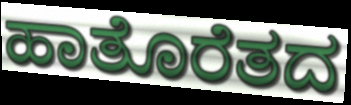
ಹಾತೊರೆತದ